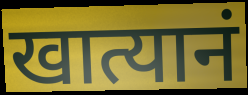
खात्यानं